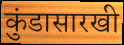
कुंडासारखी